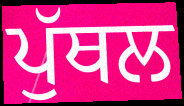
ਪੁੱਥਲ